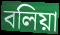
বলিয়া